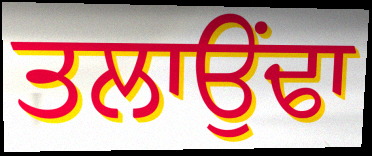
ਤਲਾਉਂਢਾ